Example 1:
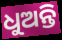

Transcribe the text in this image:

ଧୁଅନ୍ତି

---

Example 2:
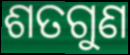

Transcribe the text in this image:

ଶତଗୁଣ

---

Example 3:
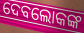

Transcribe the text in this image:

ଦେବଲୋକଙ୍କ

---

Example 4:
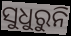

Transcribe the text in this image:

ସୁଧୁରୁନି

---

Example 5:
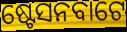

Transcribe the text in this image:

ଷ୍ଟେସନବାଟେ